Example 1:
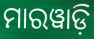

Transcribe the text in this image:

ମାରୱାଡ଼ି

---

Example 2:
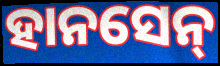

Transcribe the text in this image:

ହାନସେନ୍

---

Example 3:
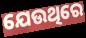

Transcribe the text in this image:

ଯେଉଥିରେ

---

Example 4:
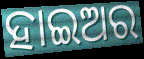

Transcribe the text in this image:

ହାଇଅର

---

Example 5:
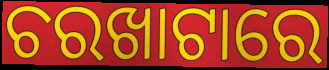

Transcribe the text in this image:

ଚରଖାଟାରେ